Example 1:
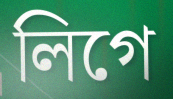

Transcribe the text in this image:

লিগে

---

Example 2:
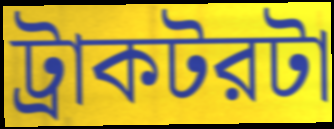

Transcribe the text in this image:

ট্রাকটরটা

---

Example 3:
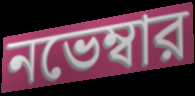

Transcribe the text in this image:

নভেম্বার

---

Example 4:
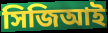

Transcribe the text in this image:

সিজিআই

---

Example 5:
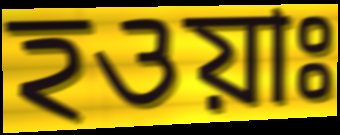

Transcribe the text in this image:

হওয়াঃ